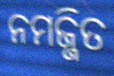
ନମଜ୍ଜିତ